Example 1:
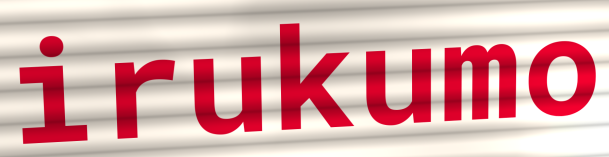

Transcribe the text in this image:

irukumo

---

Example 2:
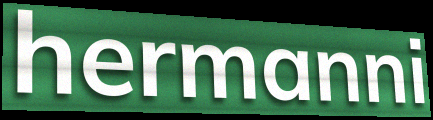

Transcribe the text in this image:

hermanni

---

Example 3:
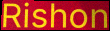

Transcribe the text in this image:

Rishon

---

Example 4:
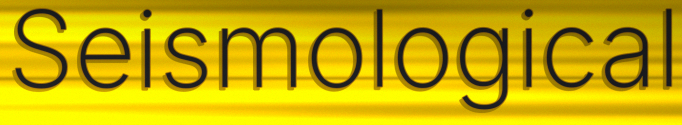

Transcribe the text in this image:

Seismological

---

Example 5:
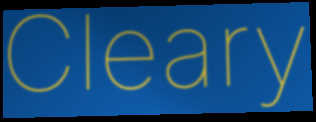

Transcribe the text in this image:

Cleary